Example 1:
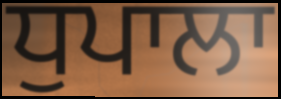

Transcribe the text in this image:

ਧੁਪਾਲਾ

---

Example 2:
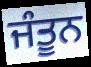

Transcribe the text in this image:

ਜੰਤੂਨ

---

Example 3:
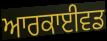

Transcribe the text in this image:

ਆਰਕਾਈਵਡ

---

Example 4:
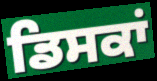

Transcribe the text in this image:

ਡਿਸਕਾਂ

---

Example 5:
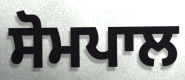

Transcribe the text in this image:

ਸੋਮਪਾਲ